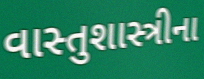
વાસ્તુશાસ્ત્રીના